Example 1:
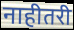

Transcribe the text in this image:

नाहीतरी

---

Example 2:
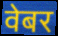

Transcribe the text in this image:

वेबर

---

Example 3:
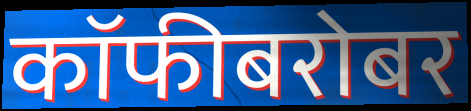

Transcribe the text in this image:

कॉफीबरोबर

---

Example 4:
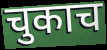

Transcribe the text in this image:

चुकाच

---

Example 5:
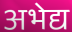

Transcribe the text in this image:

अभेद्य